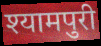
श्यामपुरी